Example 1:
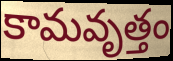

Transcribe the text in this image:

కామవృత్తం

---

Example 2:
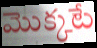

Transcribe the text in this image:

మొక్కటే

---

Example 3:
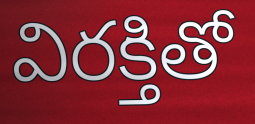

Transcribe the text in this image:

విరక్తితో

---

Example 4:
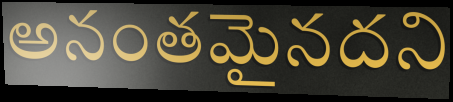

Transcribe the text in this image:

అనంతమైనదని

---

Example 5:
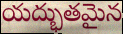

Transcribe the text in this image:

యద్భుతమైన